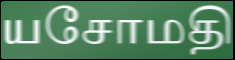
யசோமதி